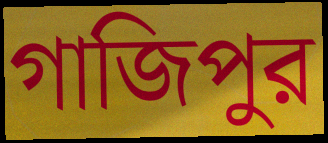
গাজিপুর